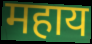
महाय